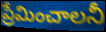
ప్రేమించాలనీ